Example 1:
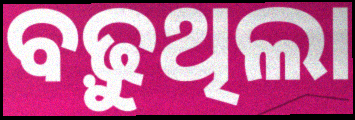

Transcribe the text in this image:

ବଢ଼ୁଥିଲା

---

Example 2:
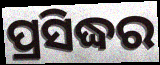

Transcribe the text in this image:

ପ୍ରସିଦ୍ଧର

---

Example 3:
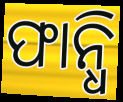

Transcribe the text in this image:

ଫାନ୍ଧି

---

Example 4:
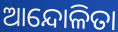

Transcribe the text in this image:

ଆନ୍ଦୋଳିତା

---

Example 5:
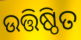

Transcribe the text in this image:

ଉତ୍ତିଷ୍ଠିତ